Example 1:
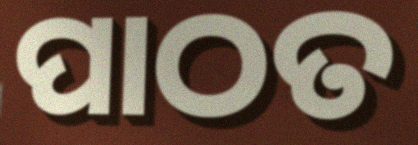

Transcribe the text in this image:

ପାଠତ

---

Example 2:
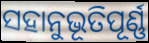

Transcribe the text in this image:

ସହାନୁଭୂତିପୂର୍ଣ୍ଣ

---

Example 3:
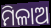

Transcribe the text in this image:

ମିଳାଅ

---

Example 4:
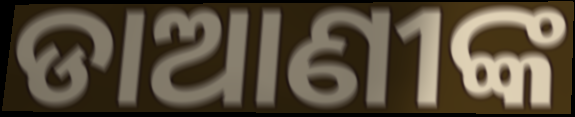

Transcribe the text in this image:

ଡାଆଣୀଙ୍କ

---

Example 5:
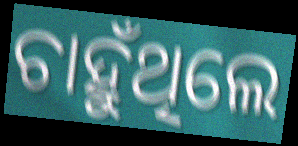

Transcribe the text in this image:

ଚାହୁଁଥିଲେ